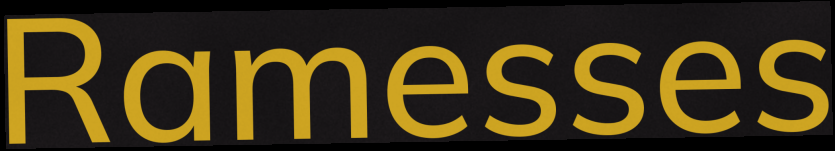
Ramesses